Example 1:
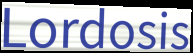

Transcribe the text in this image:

Lordosis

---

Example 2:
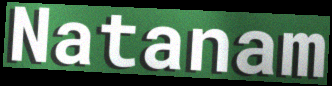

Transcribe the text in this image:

Natanam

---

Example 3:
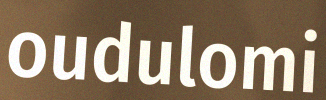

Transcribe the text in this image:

oudulomi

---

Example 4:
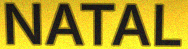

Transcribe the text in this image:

NATAL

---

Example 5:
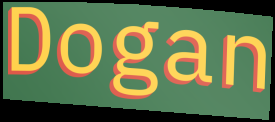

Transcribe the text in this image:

Dogan